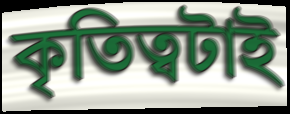
কৃতিত্বটাই